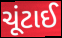
ચૂંટાઈ